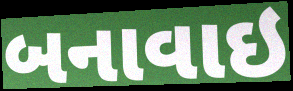
બનાવાઇ